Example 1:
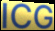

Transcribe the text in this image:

ICG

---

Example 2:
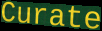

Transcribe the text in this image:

Curate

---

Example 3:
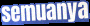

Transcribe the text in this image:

semuanya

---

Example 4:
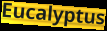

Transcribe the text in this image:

Eucalyptus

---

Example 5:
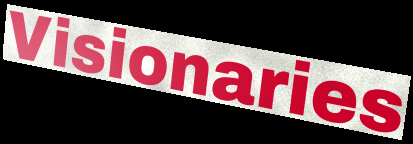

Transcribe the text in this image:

Visionaries